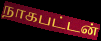
நாகபட்டன்